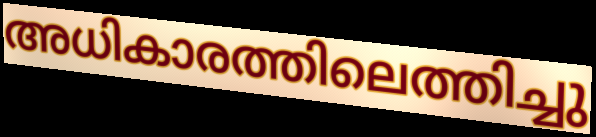
അധികാരത്തിലെത്തിച്ചു